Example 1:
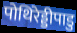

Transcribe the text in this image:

पोथिरेड्डीपाडु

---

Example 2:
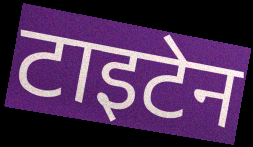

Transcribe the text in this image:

टाइटेन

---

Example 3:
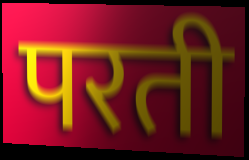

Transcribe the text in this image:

परती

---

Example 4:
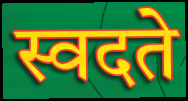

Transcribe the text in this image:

स्वदते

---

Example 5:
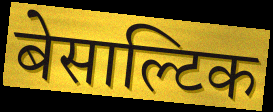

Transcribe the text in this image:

बेसाल्टिक